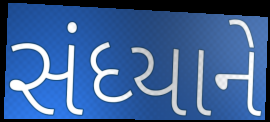
સંધ્યાને